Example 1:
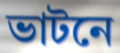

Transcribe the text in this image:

ভাটনে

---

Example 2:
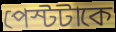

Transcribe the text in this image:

পেস্টটাকে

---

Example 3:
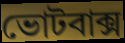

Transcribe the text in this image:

ভোটবাক্স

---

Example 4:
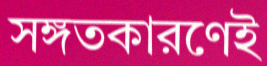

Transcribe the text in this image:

সঙ্গতকারণেই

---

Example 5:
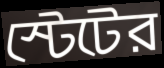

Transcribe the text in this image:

স্টেটের